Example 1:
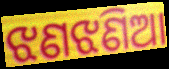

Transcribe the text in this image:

ଝଣଝଣିଆ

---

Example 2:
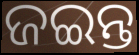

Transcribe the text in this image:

ଜଇନ୍ତ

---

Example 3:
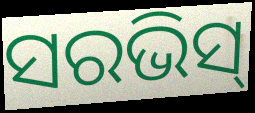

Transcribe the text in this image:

ସରଭିସ୍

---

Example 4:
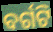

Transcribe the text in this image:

ବର୍ଗଟି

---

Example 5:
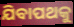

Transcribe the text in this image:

ଯିବାପଥକୁ